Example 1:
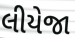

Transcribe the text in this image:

લીયેજા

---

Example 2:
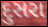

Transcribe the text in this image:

દુસરા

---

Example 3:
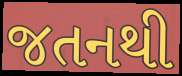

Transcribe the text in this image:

જતનથી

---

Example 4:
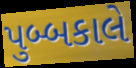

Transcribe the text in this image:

પુબ્બકાલે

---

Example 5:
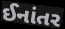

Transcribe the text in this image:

ઈનાંતર